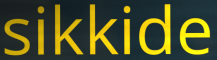
sikkide